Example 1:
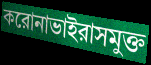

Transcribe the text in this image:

করোনাভাইরাসমুক্ত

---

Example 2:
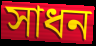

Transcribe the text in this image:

সাধন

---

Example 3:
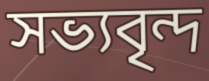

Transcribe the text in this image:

সভ্যবৃন্দ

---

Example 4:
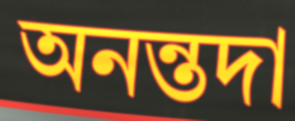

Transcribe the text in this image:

অনন্তদা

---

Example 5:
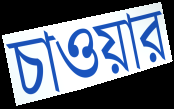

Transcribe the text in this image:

চাওয়ার